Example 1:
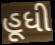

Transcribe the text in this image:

હૂધી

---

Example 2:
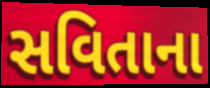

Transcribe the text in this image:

સવિતાના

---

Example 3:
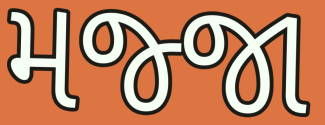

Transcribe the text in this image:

મજ્જા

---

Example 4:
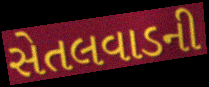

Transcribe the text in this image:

સેતલવાડની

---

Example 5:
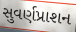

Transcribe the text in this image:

સુવર્ણપ્રાશન